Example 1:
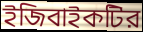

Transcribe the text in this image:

ইজিবাইকটির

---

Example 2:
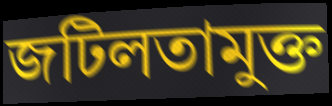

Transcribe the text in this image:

জটিলতামুক্ত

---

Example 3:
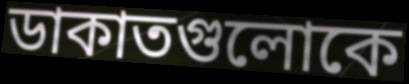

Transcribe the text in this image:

ডাকাতগুলোকে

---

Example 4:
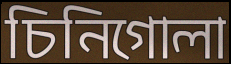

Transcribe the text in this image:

চিনিগোলা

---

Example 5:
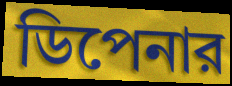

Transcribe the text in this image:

ডিপেনার